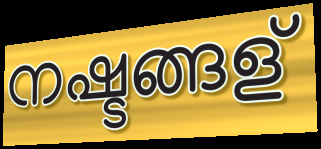
നഷ്ടങ്ങള്